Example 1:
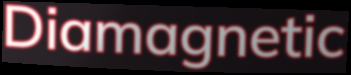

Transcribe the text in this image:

Diamagnetic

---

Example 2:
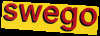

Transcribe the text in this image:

swego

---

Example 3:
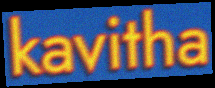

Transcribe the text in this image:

kavitha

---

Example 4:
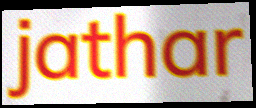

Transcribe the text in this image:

jathar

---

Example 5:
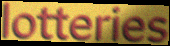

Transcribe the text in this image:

lotteries